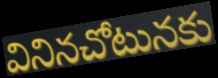
వినినచోటునకు